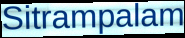
Sitrampalam